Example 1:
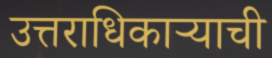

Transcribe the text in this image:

उत्तराधिकाऱ्याची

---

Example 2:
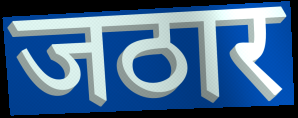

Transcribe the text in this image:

जठार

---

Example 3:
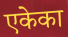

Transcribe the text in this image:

एकेका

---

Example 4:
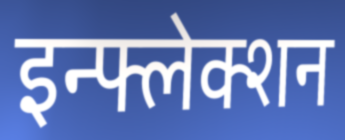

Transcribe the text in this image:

इन्फ्लेक्शन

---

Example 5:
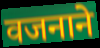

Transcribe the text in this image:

वजनाने